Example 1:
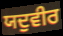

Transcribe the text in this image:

ਯਦੁਵੀਰ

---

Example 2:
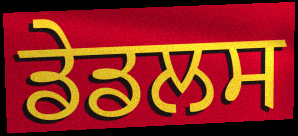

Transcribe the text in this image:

ਡੇਡਲਸ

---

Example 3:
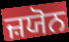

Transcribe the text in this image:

ਜ਼ਯੋਨ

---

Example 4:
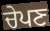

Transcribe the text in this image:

ਚੇਪਣ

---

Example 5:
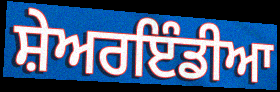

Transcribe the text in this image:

ਸ਼ੇਅਰਇੰਡੀਆ